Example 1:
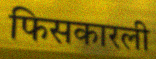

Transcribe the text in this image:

फिसकारली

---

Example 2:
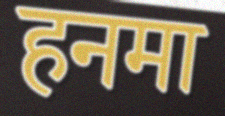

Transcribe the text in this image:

हनमा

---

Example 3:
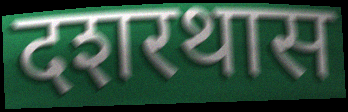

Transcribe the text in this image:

दशरथास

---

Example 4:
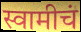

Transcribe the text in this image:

स्वामीचं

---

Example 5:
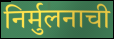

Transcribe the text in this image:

निर्मुलनाची